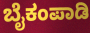
ಬೈಕಂಪಾಡಿ